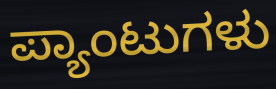
ಪ್ಯಾಂಟುಗಳು